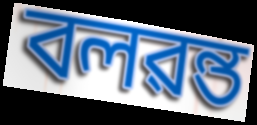
বলৱন্ত